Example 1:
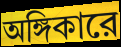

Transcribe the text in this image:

অঙ্গিকারে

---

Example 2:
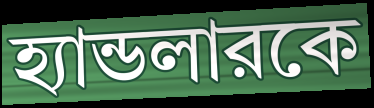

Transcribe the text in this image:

হ্যান্ডলারকে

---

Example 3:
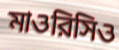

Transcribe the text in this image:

মাওরিসিও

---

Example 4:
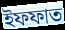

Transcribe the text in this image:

ইফফাত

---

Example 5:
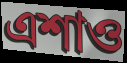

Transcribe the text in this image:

এশাও